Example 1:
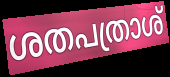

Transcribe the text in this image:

ശതപത്രാശ്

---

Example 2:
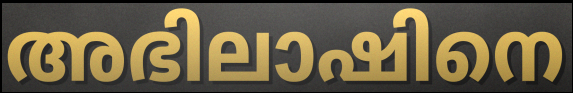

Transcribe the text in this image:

അഭിലാഷിനെ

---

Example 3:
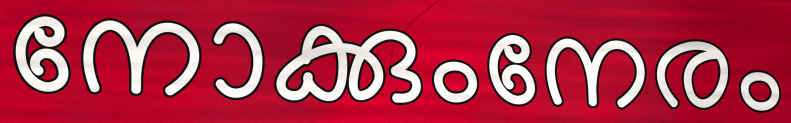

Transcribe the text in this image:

നോക്കുംനേരം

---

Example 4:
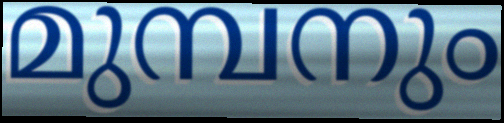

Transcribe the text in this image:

മുമ്പനും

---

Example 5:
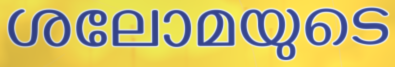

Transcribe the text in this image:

ശലോമയുടെ